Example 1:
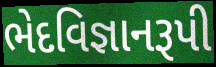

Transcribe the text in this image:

ભેદવિજ્ઞાનરૂપી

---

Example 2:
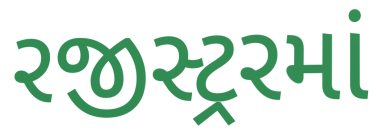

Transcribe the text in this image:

રજીસ્ટ્રરમાં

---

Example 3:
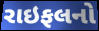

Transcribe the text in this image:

રાઇફલનો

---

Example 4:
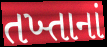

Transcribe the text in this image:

તખ્તાનાં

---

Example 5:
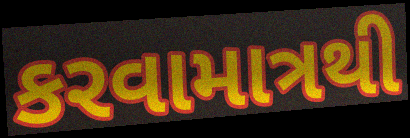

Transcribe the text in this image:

કરવામાત્રથી